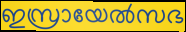
ഇസ്രായേൽസഭ